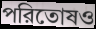
পরিতোষও